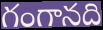
గంగానది